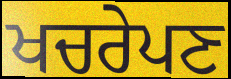
ਖਚਰੇਪਣ